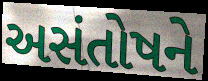
અસંતોષને